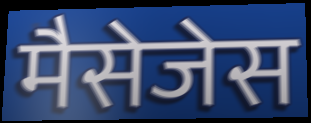
मैसेजेस